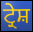
ਟ੍ਰੇਸ਼